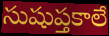
సుషుప్తకాలే